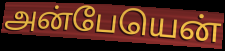
அன்பேயென்